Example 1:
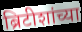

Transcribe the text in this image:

ब्रिटीशांच्या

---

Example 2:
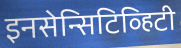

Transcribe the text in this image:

इनसेन्सिटिव्हिटी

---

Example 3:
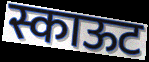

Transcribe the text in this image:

स्काऊट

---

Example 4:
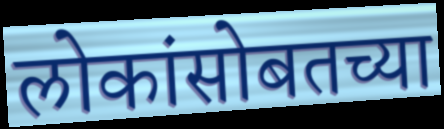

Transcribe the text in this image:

लोकांसोबतच्या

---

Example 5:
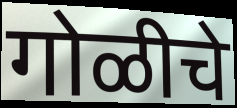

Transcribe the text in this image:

गोळीचे